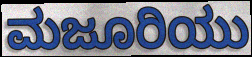
ಮಜೂರಿಯು